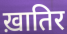
ख़ातिर